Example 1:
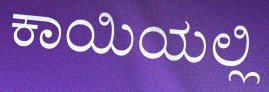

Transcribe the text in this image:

ಕಾಯಿಯಲ್ಲಿ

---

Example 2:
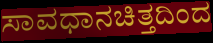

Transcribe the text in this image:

ಸಾವಧಾನಚಿತ್ತದಿಂದ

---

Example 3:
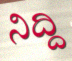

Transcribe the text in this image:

ನಿದ್ದಿ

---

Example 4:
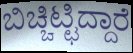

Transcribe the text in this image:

ಬಿಚ್ಚಿಟ್ಟಿದ್ದಾರೆ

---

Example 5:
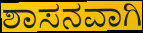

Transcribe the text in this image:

ಶಾಸನವಾಗಿ